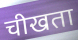
चीखता